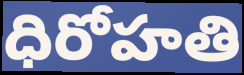
ధిరోహతి